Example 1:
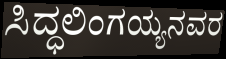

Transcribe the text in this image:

ಸಿದ್ಧಲಿಂಗಯ್ಯನವರ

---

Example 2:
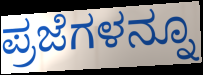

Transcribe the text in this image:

ಪ್ರಜೆಗಳನ್ನೂ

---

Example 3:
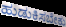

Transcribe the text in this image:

ಹುಡುಕಿಸಬೇಕು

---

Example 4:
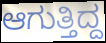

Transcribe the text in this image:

ಆಗುತ್ತಿದ್ದ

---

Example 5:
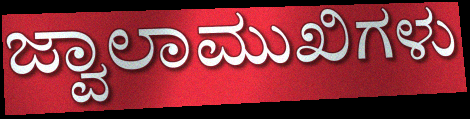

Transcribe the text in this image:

ಜ್ವಾಲಾಮುಖಿಗಳು